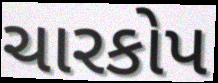
ચારકોપ